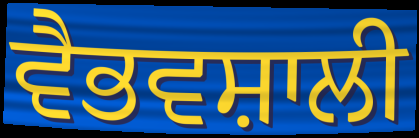
ਵੈਭਵਸ਼ਾਲੀ